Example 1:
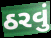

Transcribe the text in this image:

ઠરવું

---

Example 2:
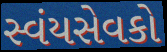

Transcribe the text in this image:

સ્વંયસેવકો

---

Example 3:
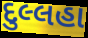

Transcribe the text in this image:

દુલ્લહા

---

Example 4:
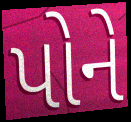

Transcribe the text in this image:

પોને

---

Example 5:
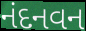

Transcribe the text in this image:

નંદનવન